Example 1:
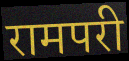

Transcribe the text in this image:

रामपरी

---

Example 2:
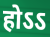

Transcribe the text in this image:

होऽऽ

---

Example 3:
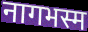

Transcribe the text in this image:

नागभस्म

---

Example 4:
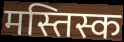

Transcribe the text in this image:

मस्तिस्क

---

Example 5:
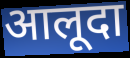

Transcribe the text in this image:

आलूदा